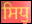
ਸਿਧੁ